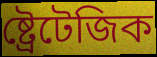
ষ্ট্ৰেটেজিক